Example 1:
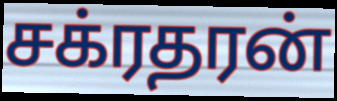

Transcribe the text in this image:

சக்ரதரன்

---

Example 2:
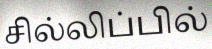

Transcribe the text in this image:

சில்லிப்பில்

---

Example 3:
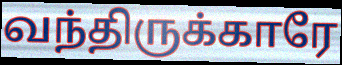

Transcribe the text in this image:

வந்திருக்காரே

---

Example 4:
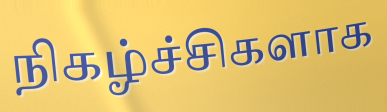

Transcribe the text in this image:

நிகழ்ச்சிகளாக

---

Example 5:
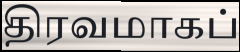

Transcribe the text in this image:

திரவமாகப்